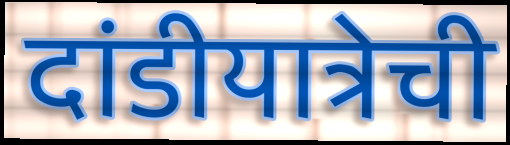
दांडीयात्रेची